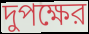
দুপক্ষের